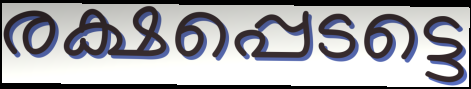
രക്ഷപ്പെടട്ടെ